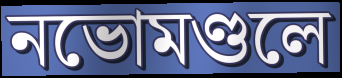
নভোমণ্ডলে